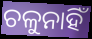
ଚଳୁନାହିଁ